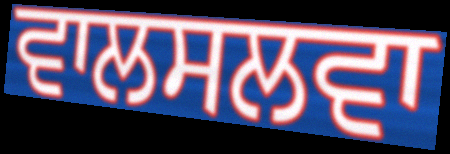
ਵਾਲਸਲਵਾ